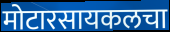
मोटारसायकलचा